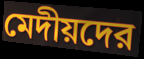
মেদীয়দের